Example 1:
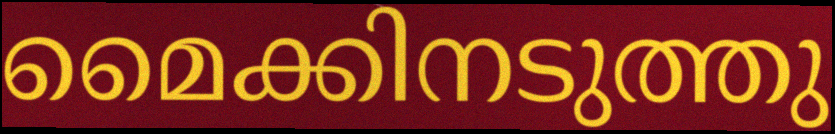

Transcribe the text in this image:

മൈക്കിനടുത്തു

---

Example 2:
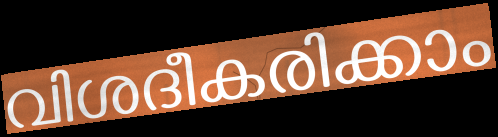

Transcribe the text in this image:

വിശദീകരിക്കാം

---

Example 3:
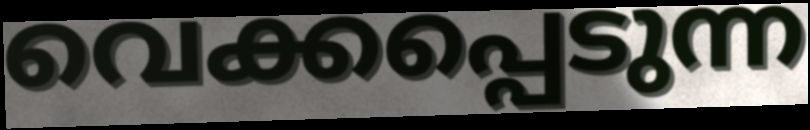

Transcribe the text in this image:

വെക്കപ്പെടുന്ന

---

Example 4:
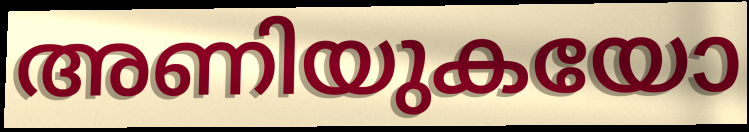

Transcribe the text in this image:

അണിയുകയോ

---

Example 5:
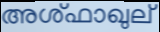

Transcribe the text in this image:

അശ്ഫാഖുല്